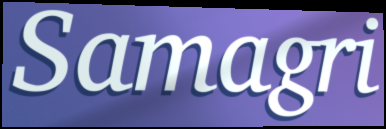
Samagri